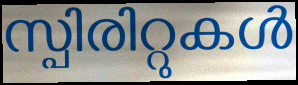
സ്പിരിറ്റുകൾ